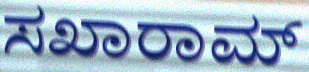
ಸಖಾರಾಮ್